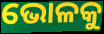
ଭୋଳକୁ